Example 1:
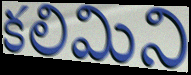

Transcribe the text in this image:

కలిమిని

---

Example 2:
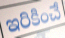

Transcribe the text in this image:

ఇరికించే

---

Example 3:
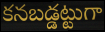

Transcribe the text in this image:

కనబడ్డట్టుగా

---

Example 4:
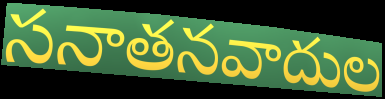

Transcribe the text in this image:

సనాతనవాదుల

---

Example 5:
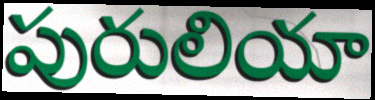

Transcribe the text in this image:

పురులియా